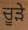
ਚੂੜੇ